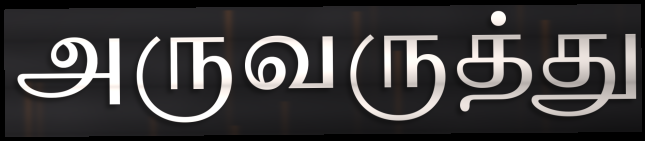
அருவருத்து